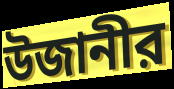
উজানীর